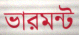
ভারমন্ট